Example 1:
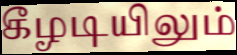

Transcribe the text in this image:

கீழடியிலும்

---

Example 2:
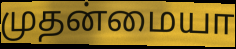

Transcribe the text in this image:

முதன்மையா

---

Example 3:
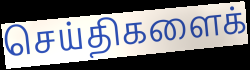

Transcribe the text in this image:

செய்திகளைக்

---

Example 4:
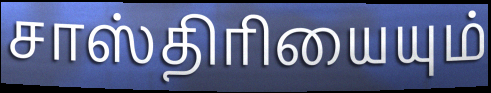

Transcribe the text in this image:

சாஸ்திரியையும்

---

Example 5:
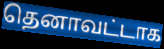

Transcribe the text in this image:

தெனாவட்டாக